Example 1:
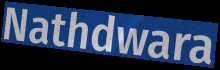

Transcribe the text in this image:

Nathdwara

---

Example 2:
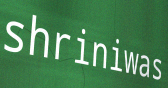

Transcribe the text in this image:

shriniwas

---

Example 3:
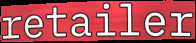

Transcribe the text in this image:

retailer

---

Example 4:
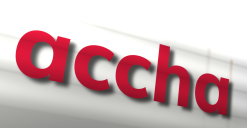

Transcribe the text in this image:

accha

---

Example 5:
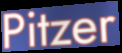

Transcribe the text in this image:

Pitzer